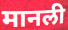
मानली